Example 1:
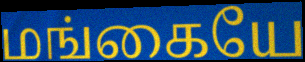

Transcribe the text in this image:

மங்கையே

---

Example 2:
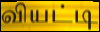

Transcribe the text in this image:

வியட்டி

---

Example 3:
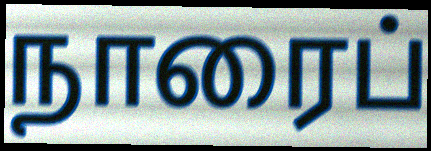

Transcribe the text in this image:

நாரைப்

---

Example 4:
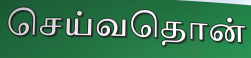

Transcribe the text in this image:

செய்வதொன்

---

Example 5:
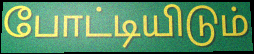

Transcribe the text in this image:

போட்டியிடும்